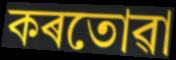
কৰতোৱা